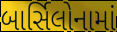
બાર્સિલોનામાં